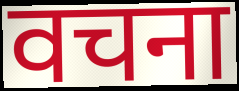
वचना